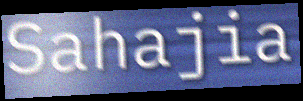
Sahajia